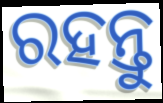
ରହନ୍ତୁ